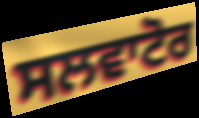
ਸਲਵਾਟੋਰ